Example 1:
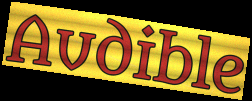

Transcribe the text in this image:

Audible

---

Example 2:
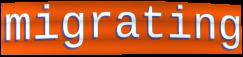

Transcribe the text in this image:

migrating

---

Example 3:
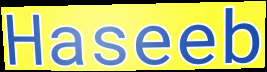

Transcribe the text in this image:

Haseeb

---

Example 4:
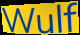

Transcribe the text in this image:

Wulf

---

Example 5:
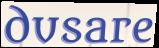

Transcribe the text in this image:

dusare